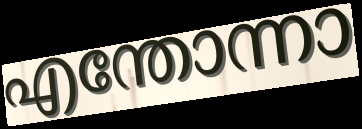
എന്തോന്നാ